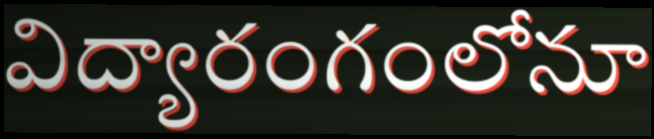
విద్యారంగంలోనూ